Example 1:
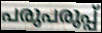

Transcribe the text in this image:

പരുപരുപ്പ്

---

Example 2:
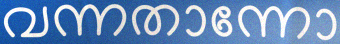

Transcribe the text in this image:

വന്നതാന്നോ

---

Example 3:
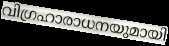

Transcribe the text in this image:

വിഗ്രഹാരാധനയുമായി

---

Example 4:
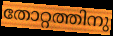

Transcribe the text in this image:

തോറ്റത്തിനു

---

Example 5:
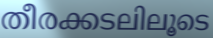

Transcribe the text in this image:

തീരക്കടലിലൂടെ